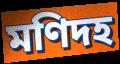
মণিদহ